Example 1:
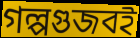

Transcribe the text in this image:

গল্পগুজবই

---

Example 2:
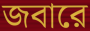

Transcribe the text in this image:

জবারে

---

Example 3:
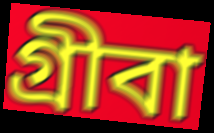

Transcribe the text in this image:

গ্রীবা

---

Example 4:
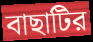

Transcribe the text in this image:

বাছাটির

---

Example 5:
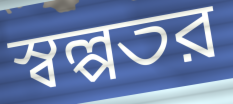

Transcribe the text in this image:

স্বল্পতর